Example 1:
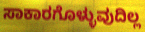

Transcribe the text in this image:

ಸಾಕಾರಗೊಳ್ಳುವುದಿಲ್ಲ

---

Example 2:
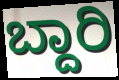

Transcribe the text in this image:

ಬ್ದಾರಿ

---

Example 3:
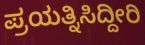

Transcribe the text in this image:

ಪ್ರಯತ್ನಿಸಿದ್ದೀರಿ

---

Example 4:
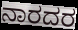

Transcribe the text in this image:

ನಾರದರ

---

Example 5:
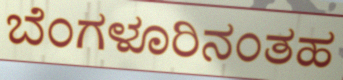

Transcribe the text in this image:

ಬೆಂಗಳೂರಿನಂತಹ